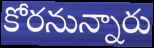
కోరనున్నారు